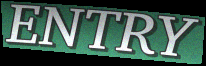
ENTRY